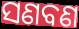
ସଣବଣ